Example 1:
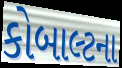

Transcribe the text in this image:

કોબાલ્ટના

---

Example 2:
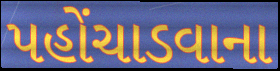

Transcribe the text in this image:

પહોંચાડવાના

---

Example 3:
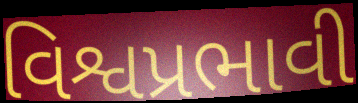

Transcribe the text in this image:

વિશ્વપ્રભાવી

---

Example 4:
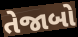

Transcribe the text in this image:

તેજાબો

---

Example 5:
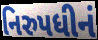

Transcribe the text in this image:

નિરુપધીનં